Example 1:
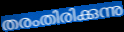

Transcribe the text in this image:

തരംതിരിക്കുന്നു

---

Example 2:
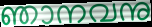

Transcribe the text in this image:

ഞാനവനു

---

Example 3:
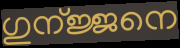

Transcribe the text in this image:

ഗുന്ജ്ജനെ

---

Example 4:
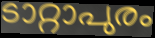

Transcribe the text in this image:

ടാറ്റാപുരം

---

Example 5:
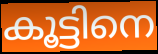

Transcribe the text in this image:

കൂട്ടിനെ